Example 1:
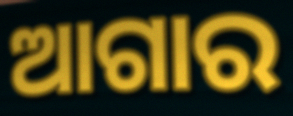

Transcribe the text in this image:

ଆଗାର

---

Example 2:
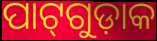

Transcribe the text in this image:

ପାଟ୍‌ଗୁଡ଼ାକ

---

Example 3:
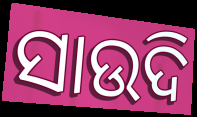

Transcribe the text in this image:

ସାଉଦି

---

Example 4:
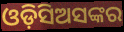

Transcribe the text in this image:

ଓଡ଼ିସିଅସଙ୍କର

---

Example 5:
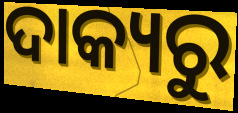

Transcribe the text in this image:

ଦାକ୍ୟରୁ